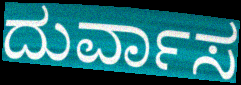
ದುರ್ವಾಸ